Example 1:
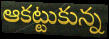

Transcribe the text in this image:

ఆకట్టుకున్న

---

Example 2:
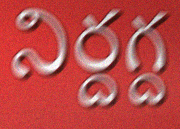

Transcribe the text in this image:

నిర్దగ్ద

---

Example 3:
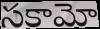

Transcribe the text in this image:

సకామో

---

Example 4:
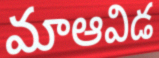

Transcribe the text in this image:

మాఆవిడ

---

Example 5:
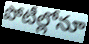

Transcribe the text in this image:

పోటీల్లోనూ